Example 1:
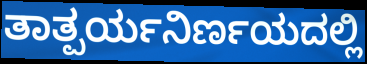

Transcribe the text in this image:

ತಾತ್ಪರ್ಯನಿರ್ಣಯದಲ್ಲಿ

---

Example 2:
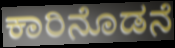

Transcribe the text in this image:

ಕಾರಿನೊಡನೆ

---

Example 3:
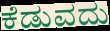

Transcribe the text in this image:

ಕೆಡುವದು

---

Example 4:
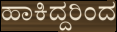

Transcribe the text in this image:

ಹಾಕಿದ್ದರಿಂದ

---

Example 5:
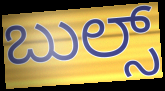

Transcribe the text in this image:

ಬುಲ್ಸ್